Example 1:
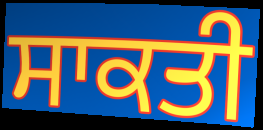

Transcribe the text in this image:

ਸਾਕਤੀ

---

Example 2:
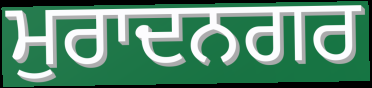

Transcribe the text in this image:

ਮੁਰਾਦਨਗਰ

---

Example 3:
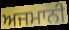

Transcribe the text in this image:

ਅਜਮਾਨੀ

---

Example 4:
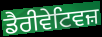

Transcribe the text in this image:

ਡੈਰੀਵੇਟਿਵਜ਼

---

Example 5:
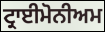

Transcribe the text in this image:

ਟ੍ਰਾਈਮੋਨੀਅਮ